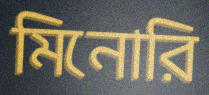
মিনোরি